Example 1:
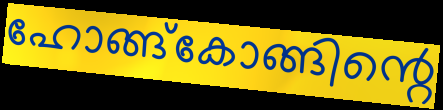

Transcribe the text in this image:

ഹോങ്ങ്കോങ്ങിന്റെ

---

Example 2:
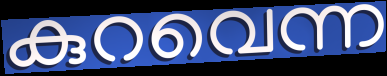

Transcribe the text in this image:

കുറവെന്ന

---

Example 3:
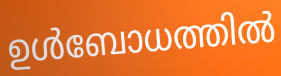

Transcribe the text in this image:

ഉൾബോധത്തിൽ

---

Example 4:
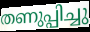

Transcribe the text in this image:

തണുപ്പിച്ചു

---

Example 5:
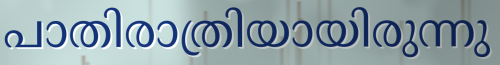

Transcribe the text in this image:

പാതിരാത്രിയായിരുന്നു